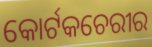
କୋର୍ଟକଚେରୀର